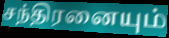
சந்திரனையும்